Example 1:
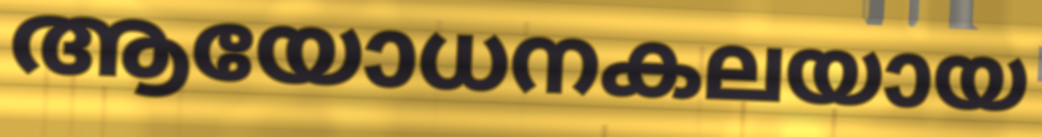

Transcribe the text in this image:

ആയോധനകലയായ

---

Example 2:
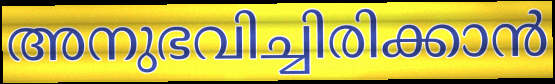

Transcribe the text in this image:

അനുഭവിച്ചിരിക്കാൻ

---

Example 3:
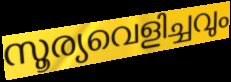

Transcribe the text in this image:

സൂര്യവെളിച്ചവും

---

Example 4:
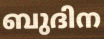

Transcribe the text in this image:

ബുദിന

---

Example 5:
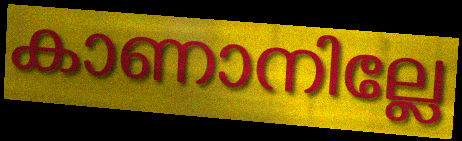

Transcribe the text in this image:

കാണാനില്ലേ